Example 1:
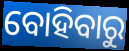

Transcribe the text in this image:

ବୋହିବାରୁ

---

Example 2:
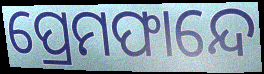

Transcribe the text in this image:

ପ୍ରେମଫାନ୍ଦେ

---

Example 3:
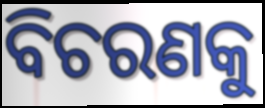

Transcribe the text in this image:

ବିଚରଣକୁ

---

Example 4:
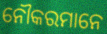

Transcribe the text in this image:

ନୌକରମାନେ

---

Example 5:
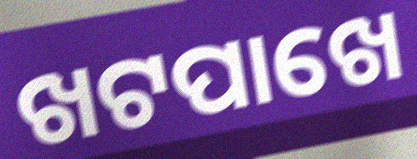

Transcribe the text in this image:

ଖଟପାଖେ